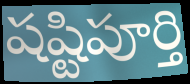
షష్టిపూర్తి